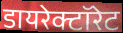
डायरेक्टॉरेट